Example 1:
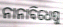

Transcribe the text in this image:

ନାନାବିଧେଷୁ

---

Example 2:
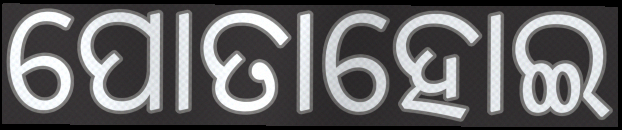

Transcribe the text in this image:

ପୋତାହୋଇ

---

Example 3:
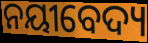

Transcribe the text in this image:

ନୟୀବେଦ୍ୟ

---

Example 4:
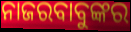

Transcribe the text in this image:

ନାଜରବାବୁଙ୍କର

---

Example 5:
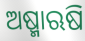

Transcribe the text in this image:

ଅଷ୍ମାଋଷି